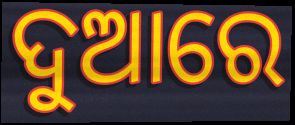
ଦୁଆରେ